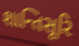
શાન્તિસૂરિ